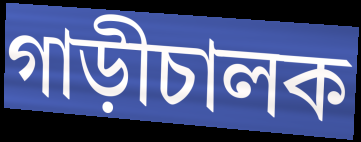
গাড়ীচালক